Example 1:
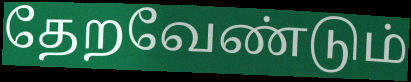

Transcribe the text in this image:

தேறவேண்டும்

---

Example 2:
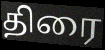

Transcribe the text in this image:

திரை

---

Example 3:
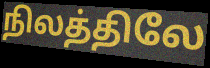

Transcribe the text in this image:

நிலத்திலே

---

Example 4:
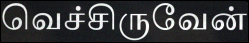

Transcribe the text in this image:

வெச்சிருவேன்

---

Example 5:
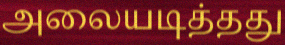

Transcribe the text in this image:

அலையடித்தது